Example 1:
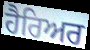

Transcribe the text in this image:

ਹੈਰਿਅਰ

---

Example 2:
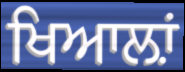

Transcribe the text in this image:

ਖਿਆਲ਼ਾਂ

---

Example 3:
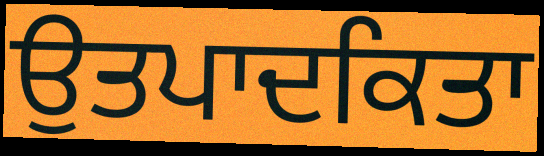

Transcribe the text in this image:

ਉਤਪਾਦਕਿਤਾ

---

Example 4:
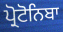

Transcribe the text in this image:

ਪ੍ਰੋਟੋਨਿਬਾ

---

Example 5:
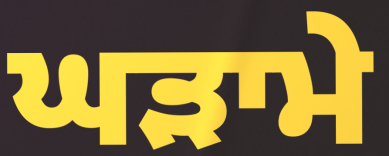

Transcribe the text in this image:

ਘੜਾਮੇ